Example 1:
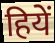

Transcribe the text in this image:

हियें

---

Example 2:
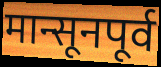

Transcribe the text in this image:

मान्सूनपूर्व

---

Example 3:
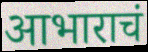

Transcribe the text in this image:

आभाराचं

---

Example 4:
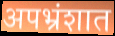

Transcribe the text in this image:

अपभ्रंशात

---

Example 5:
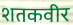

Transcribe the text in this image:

शतकवीर